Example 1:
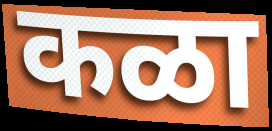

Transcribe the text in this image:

कळा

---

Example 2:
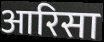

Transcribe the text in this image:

आरिसा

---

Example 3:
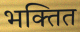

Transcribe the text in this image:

भक्तित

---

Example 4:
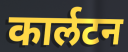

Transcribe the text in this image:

कार्लटन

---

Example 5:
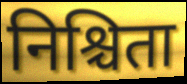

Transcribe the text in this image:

निश्चिता